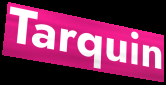
Tarquin